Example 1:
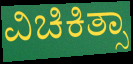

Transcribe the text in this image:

ವಿಚಿಕಿತ್ಸಾ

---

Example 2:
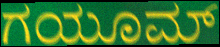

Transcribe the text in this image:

ಗಯೂಮ್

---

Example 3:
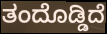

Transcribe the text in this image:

ತಂದೊಡ್ಡಿದೆ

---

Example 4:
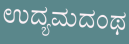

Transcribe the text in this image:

ಉದ್ಯಮದಂಥ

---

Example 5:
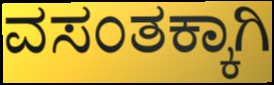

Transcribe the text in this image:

ವಸಂತಕ್ಕಾಗಿ